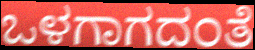
ಒಳಗಾಗದಂತೆ